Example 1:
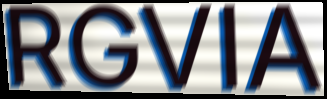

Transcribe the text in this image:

RGVIA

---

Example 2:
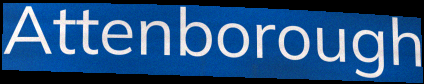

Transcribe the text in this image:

Attenborough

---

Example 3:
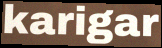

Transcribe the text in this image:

karigar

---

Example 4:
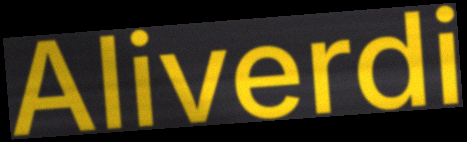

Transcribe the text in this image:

Aliverdi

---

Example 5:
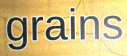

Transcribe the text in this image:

grains